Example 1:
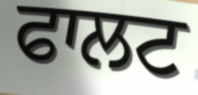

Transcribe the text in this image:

ਫਾਲਟ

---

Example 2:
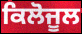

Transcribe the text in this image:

ਕਿਲੋਜੂਲ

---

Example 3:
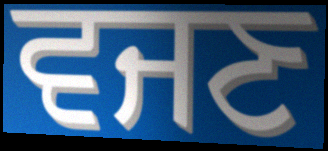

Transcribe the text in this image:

ਵਜਣ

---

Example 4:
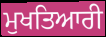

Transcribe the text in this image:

ਮੁਖਤਿਆਰੀ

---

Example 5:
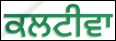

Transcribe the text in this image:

ਕਲਟੀਵਾ